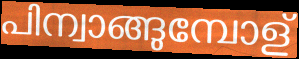
പിന്വാങ്ങുമ്പോള്